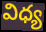
విధ్య